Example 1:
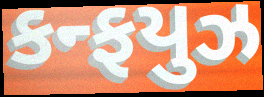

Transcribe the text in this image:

કન્ફયુઝ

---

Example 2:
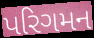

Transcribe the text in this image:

પરિગમન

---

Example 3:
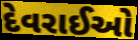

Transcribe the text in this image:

દેવરાઈઓ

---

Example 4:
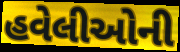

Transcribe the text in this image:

હવેલીઓની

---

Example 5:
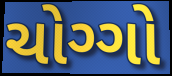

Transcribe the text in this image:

ચોગ્ગો